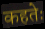
कहतेः